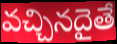
వచ్చినదైతే